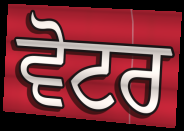
ਵੋਟਰ